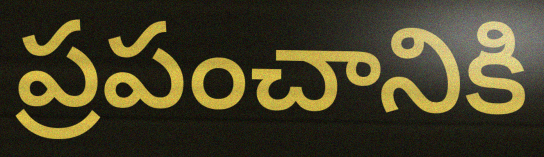
ప్రపంచానికి